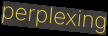
perplexing